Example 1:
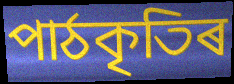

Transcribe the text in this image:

পাঠকৃতিৰ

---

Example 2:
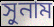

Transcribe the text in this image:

সুনাম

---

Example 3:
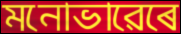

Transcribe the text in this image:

মনোভাৱেৰে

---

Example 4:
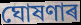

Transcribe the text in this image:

ঘোষণাৰ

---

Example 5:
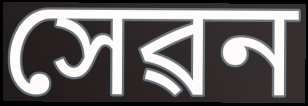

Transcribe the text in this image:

সেৱন